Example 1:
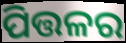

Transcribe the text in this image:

ପିତ୍ତଳର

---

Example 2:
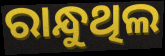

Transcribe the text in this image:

ରାନ୍ଧୁଥିଲ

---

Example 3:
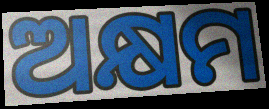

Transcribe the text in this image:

ଅକ୍ଷମ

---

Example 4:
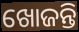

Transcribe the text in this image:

ଖୋଜନ୍ତି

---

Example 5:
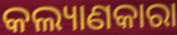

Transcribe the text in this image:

କଲ୍ୟାଣକାରା